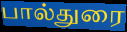
பால்துரை